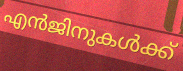
എൻജിനുകൾക്ക്